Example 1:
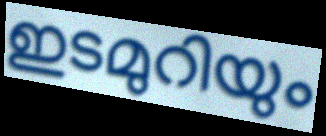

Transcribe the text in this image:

ഇടമുറിയും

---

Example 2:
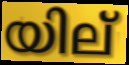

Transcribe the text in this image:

യില്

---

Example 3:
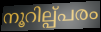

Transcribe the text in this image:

നൂറില്പ്പരം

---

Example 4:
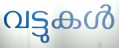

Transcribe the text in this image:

വട്ടുകൾ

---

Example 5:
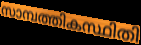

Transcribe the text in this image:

സാമ്പത്തികസ്ഥിതി